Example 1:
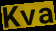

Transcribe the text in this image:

Kva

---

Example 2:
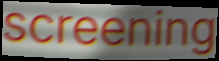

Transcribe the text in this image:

screening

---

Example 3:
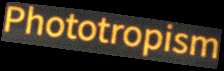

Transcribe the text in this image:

Phototropism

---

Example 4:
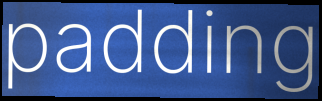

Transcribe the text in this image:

padding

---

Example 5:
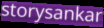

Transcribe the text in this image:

storysankar